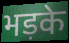
भड़के